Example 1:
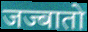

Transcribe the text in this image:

जज्बातो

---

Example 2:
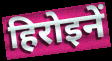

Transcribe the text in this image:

हिरोइनें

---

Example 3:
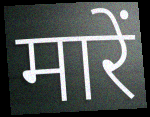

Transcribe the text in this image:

मारें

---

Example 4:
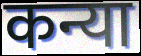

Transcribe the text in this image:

कन्या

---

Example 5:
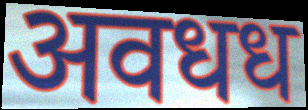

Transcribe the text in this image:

अवधध